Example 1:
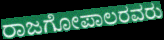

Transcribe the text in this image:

ರಾಜಗೋಪಾಲರವರು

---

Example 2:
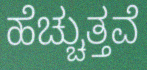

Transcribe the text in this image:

ಹೆಚ್ಚುತ್ತವೆ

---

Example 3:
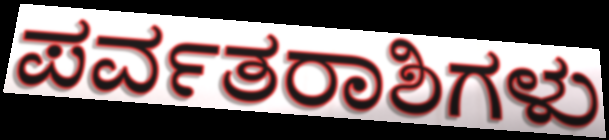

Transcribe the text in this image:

ಪರ್ವತರಾಶಿಗಳು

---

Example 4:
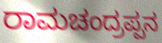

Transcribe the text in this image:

ರಾಮಚಂದ್ರಪ್ಪನ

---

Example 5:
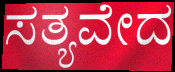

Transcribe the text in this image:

ಸತ್ಯವೇದ